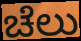
ಚೆಲು